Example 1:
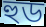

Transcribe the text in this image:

হুড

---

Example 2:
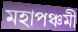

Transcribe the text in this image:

মহাপঞ্চমী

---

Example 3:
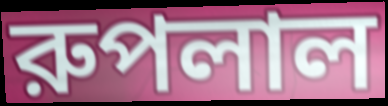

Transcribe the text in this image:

রুপলাল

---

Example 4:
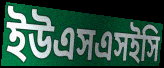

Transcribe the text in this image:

ইউএসএসইসি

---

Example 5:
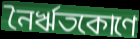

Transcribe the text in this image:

নৈর্ঋতকোণে